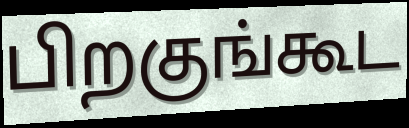
பிறகுங்கூட